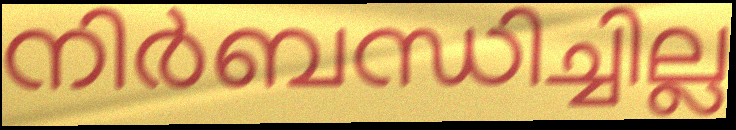
നിർബന്ധിച്ചില്ല